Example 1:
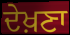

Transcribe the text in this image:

ਦੇਖ਼ਣਾ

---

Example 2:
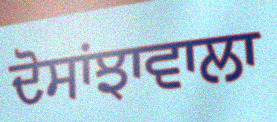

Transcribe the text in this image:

ਦੋਸਾਂਝਾਵਾਲਾ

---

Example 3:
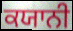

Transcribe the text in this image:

ਕਯਾਨੀ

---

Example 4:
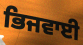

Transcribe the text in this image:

ਭਿਜਵਾਈ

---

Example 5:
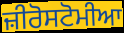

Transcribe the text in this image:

ਜ਼ੀਰੋਸਟੋਮੀਆ